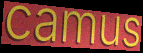
camus